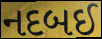
નદબઈ